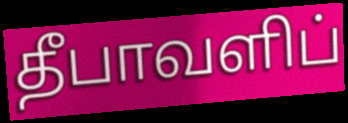
தீபாவளிப்